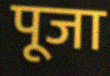
पूजा